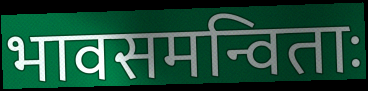
भावसमन्विताः